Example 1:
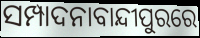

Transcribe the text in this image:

ସମ୍ପାଦନାବାନ୍ଦୀପୁରରେ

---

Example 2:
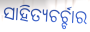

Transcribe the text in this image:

ସାହିତ୍ୟଚର୍ଚ୍ଚାର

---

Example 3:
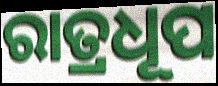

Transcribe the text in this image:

ରାତ୍ରଧୂପ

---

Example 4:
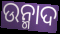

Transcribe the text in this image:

ଉନ୍ମାଦ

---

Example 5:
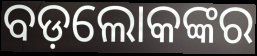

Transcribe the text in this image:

ବଡ଼ଲୋକଙ୍କର